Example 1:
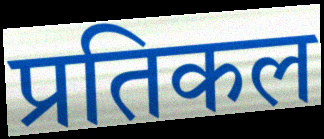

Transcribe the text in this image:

प्रतिकल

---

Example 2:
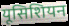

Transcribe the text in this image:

यूसिशियन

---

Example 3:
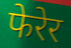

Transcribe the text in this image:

फेरेर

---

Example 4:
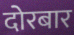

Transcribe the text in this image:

दोरबार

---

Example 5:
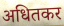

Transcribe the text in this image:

अधितकर